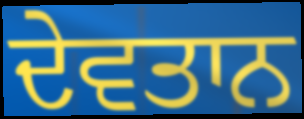
ਦੇਵਤਾਨ